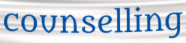
counselling